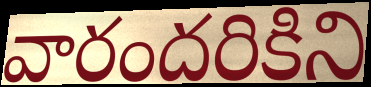
వారందరికిని